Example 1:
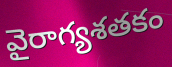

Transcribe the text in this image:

వైరాగ్యశతకం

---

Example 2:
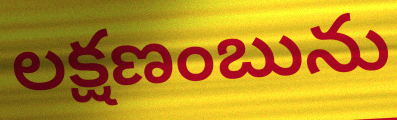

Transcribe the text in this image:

లక్షణంబును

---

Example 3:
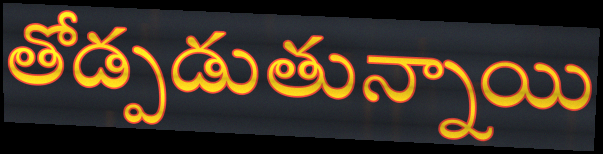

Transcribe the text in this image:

తోడ్పడుతున్నాయి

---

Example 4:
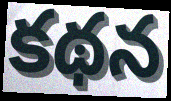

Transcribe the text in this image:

కథన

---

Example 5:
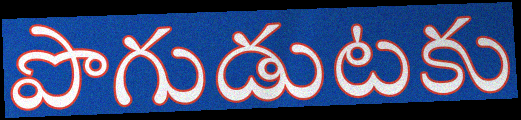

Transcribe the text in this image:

పొగుడుటకు